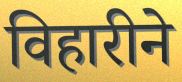
विहारीने